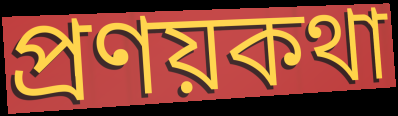
প্রণয়কথা